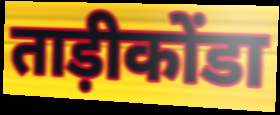
ताड़ीकोंडा